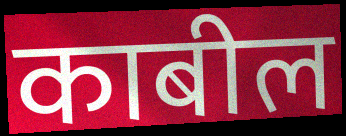
काबील